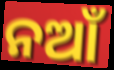
ନଆଁ